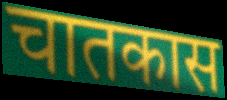
चातकास